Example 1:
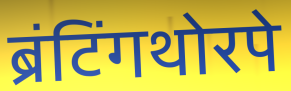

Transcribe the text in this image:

ब्रंटिंगथोरपे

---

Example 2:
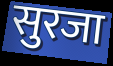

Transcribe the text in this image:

सुरजा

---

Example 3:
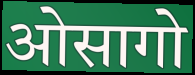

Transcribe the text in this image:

ओसागो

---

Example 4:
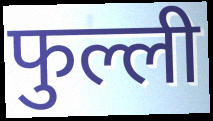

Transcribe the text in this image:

फुल्ली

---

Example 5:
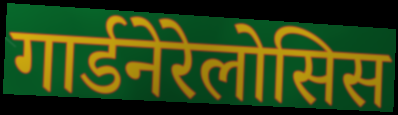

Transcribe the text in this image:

गार्डनेरेलोसिस